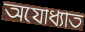
অযোধ্যাত